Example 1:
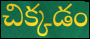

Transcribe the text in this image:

చిక్కడం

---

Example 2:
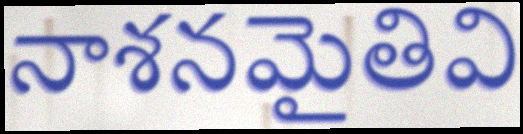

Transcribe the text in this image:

నాశనమైతివి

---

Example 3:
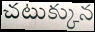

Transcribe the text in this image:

చటుక్కున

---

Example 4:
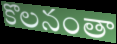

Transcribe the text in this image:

కొలనంతా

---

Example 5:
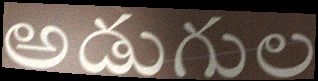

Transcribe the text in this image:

అడుగుల